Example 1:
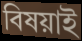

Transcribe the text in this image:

বিষয়াই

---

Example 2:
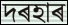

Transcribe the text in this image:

দৰহাৰ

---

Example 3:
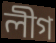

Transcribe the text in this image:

লীগ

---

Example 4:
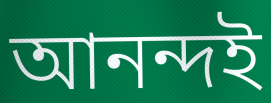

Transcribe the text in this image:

আনন্দই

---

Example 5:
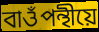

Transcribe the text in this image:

বাওঁপন্থীয়ে